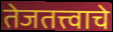
तेजतत्त्वाचे